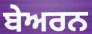
ਬੇਅਰਨ